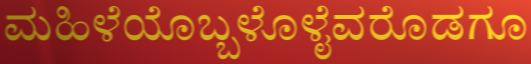
ಮಹಿಳೆಯೊಬ್ಬಳೊಳೈವರೊಡಗೂ